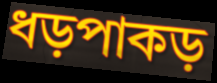
ধড়পাকড়